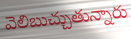
వెలిబుచ్చుతున్నారు